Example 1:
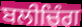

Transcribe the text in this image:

ਬਲੀਚਿੰਗ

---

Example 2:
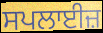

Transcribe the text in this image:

ਸਪਲਾਈਜ਼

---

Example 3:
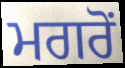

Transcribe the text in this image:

ਮਗਰੋਂ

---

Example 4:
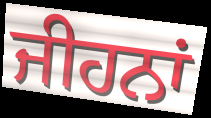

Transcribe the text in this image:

ਜੀਹਨਾਂ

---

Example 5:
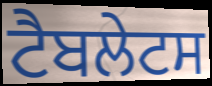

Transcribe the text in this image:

ਟੈਬਲੇਟਸ